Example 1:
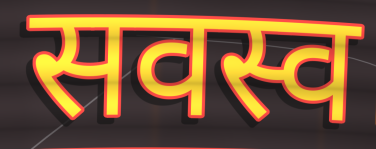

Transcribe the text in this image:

सवस्व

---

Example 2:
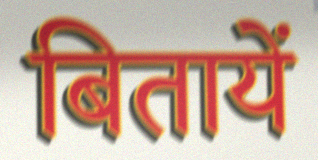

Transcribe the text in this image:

बितायें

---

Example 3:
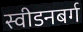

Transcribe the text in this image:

स्वीडनबर्ग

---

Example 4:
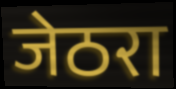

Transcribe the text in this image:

जेठरा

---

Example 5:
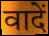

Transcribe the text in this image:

वादें